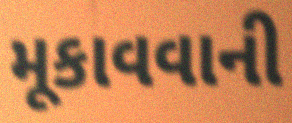
મૂકાવવાની